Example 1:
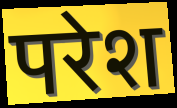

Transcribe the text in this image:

परेश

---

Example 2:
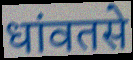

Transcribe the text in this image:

धांवतसे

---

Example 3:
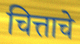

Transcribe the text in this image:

चित्ताचे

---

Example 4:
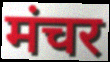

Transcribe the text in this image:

मंचर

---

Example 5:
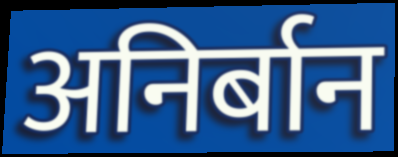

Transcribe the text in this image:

अनिर्बान